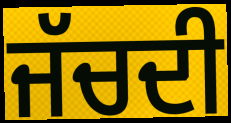
ਜੱਚਦੀ